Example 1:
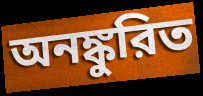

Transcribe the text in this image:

অনঙ্কুরিত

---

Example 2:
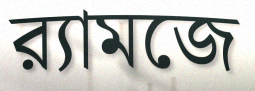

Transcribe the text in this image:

র‍্যামজে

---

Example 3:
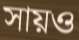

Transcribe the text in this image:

সায়ও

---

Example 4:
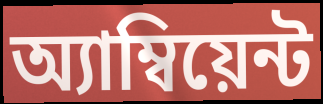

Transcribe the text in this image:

অ্যাম্বিয়েন্ট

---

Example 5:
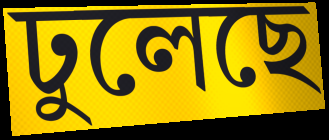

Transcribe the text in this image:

ঢুলেছে